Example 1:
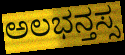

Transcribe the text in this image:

ಅಲಭನ್ತಸ್ಸ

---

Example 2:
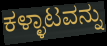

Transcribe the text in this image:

ಕಳ್ಳಾಟವನ್ನು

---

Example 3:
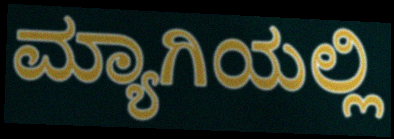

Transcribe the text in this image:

ಮ್ಯಾಗಿಯಲ್ಲಿ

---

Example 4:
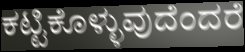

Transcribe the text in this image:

ಕಟ್ಟಿಕೊಳ್ಳುವುದೆಂದರೆ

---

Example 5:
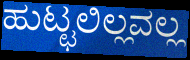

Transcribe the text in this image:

ಹುಟ್ಟಲಿಲ್ಲವಲ್ಲ